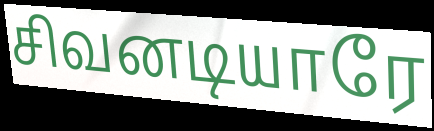
சிவனடியாரே